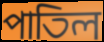
পাতিল